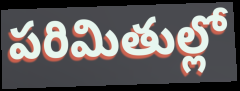
పరిమితుల్లో